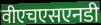
वीएचएसएनडी